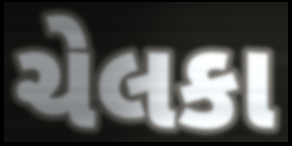
ચેલકા